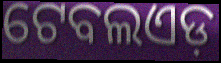
ଟେବଲଏଡ଼